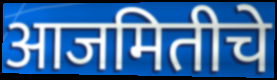
आजमितीचे